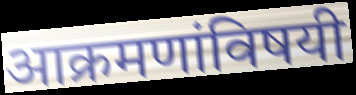
आक्रमणांविषयी